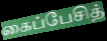
கைப்பேசித்